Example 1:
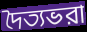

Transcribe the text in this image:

দৈত্যভরা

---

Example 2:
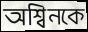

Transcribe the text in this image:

অশ্বিনকে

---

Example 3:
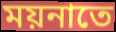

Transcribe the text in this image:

ময়নাতে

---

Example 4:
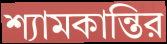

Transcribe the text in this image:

শ্যামকান্তির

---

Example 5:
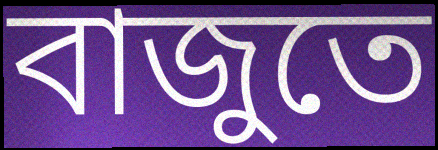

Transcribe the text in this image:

বাজুতে